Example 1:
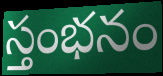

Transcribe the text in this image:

స్తంభనం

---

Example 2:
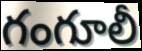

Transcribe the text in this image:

గంగూలీ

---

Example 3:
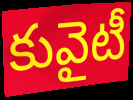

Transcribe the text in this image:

కువైటీ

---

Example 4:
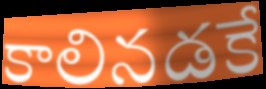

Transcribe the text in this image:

కాలినడకే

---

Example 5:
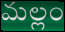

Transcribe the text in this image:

మల్లం